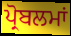
ਪ੍ਰੋਬਲਮਾਂ